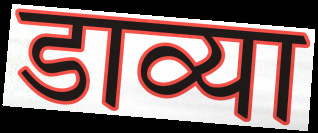
डाव्या